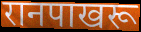
रानपाखरू